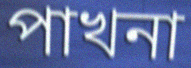
পাখনা